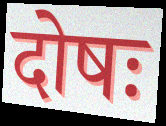
दोषः